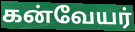
கன்வேயர்